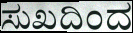
ಸುಖದಿಂದ